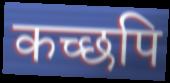
कच्छपि